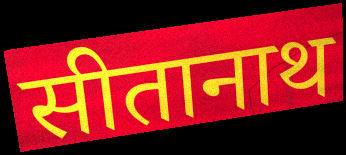
सीतानाथ